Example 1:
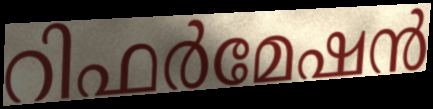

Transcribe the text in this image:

റിഫർമേഷൻ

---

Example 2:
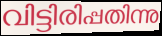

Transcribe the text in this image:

വിട്ടിരിപ്പതിന്നു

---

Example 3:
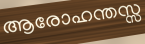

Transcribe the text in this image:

ആരോഹന്തസ്സ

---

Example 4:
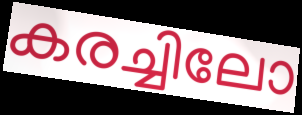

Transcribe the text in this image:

കരച്ചിലോ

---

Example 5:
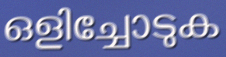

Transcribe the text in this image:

ഒളിച്ചോടുക